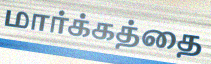
மார்க்கத்தை